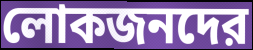
লোকজনদের